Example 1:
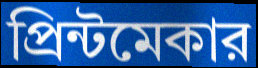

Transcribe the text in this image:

প্রিন্টমেকার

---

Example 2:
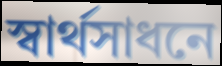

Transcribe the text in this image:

স্বার্থসাধনে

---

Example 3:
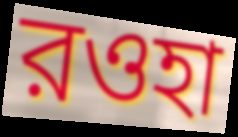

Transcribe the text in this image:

রওহা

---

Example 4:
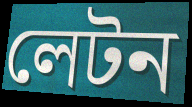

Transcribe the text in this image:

লেটন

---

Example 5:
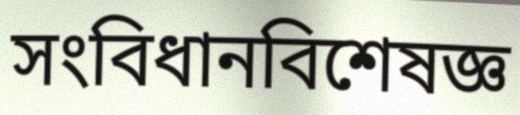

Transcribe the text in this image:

সংবিধানবিশেষজ্ঞ